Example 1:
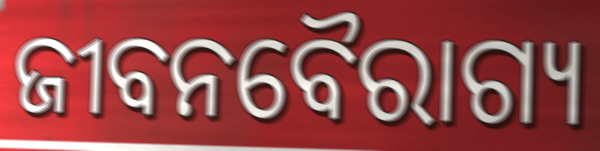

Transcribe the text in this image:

ଜୀବନବୈରାଗ୍ୟ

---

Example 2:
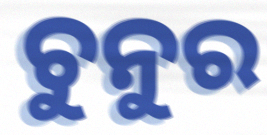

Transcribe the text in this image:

ଚୁନୁର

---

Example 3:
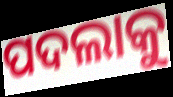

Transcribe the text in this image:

ପଦଲାକୁ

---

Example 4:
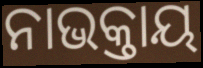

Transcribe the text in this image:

ନାଭକ୍ତାୟ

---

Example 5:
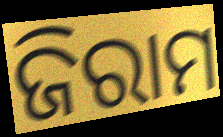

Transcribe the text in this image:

ଜିରାମ